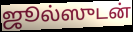
ஜூல்ஸுடன்